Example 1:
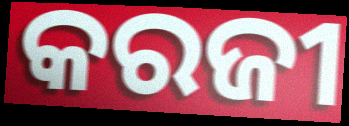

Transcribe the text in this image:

କରଜୀ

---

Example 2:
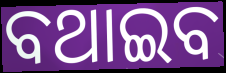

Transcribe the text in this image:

ବଥାଇବ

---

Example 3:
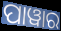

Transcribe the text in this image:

ପାୱାର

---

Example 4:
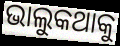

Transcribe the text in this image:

ଭାଲୁକଥାକୁ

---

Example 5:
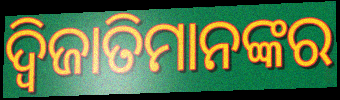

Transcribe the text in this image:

ଦ୍ୱିଜାତିମାନଙ୍କର